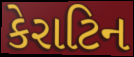
કેરાટિન